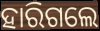
ହାରିଗଲେ